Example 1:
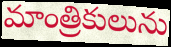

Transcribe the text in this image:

మాంత్రికులును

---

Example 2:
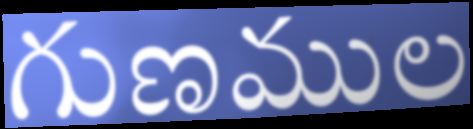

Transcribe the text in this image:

గుణముల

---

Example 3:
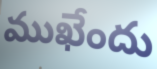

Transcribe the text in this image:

ముఖేందు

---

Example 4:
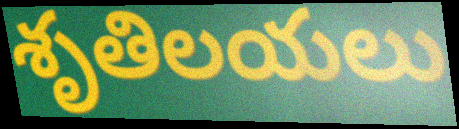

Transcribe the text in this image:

శృతిలయలు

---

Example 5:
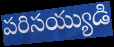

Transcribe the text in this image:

పరిసయ్యుడి